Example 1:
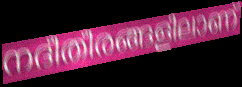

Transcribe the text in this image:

നദീതീരങ്ങളിലാണ്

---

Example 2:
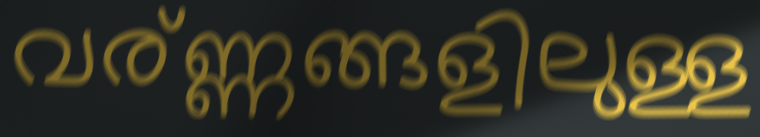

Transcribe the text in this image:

വര്ണ്ണങ്ങളിലുള്ള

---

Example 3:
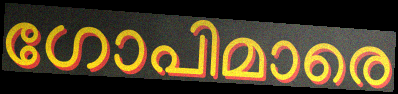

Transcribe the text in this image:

ഗോപിമാരെ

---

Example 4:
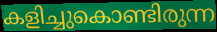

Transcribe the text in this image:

കളിച്ചുകൊണ്ടിരുന്ന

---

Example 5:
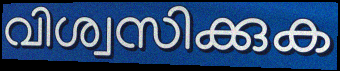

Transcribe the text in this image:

വിശ്വസിക്കുക